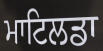
ਮਾਟਿਲਡਾ